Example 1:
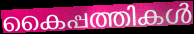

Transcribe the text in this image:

കൈപ്പത്തികൾ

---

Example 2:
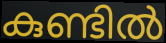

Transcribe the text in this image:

കുണ്ടിൽ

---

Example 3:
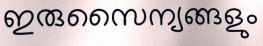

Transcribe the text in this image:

ഇരുസൈന്യങ്ങളും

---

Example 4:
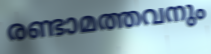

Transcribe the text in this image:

രണ്ടാമത്തവനും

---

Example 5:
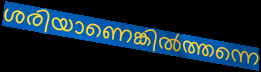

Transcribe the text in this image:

ശരിയാണെങ്കിൽത്തന്നെ